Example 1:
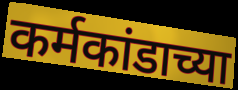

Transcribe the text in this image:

कर्मकांडाच्या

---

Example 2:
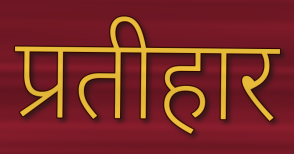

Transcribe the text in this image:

प्रतीहार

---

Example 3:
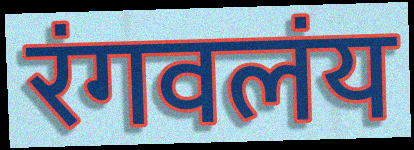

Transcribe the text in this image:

रंगवलंय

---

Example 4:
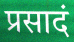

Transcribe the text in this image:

प्रसादं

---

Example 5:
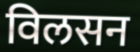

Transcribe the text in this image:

विलसन